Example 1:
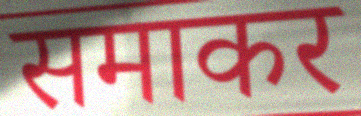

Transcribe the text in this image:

समाकर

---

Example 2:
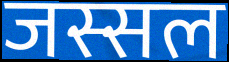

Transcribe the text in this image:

जस्सल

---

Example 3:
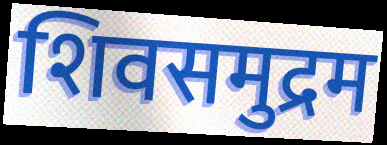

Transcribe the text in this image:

शिवसमुद्रम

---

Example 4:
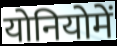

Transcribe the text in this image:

योनियोमें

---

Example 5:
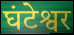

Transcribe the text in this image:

घंटेश्वर